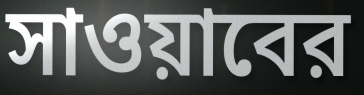
সাওয়াবের